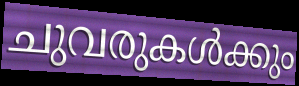
ചുവരുകൾക്കും